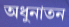
অধুনাতন